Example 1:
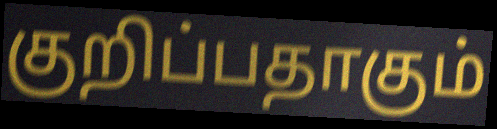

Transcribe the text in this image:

குறிப்பதாகும்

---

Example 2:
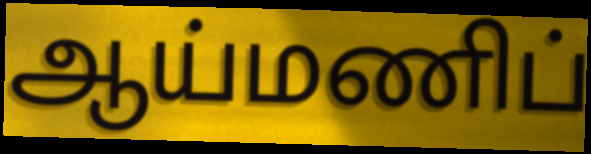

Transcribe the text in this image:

ஆய்மணிப்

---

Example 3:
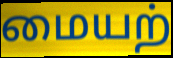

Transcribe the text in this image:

மையற்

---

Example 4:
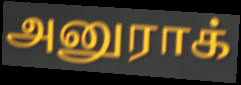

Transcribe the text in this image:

அனுராக்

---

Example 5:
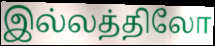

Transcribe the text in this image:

இல்லத்திலோ